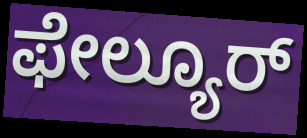
ಫೇಲ್ಯೂರ್